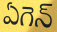
ఏగెన్